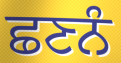
ਛਣਨੰ